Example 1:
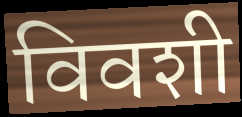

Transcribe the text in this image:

विवशी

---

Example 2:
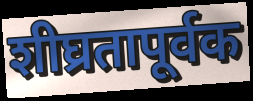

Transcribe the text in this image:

शीघ्रतापूर्वक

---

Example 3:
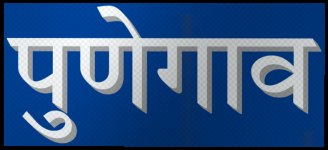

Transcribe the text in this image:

पुणेगाव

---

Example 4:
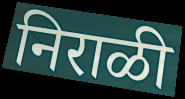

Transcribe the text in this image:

निराळी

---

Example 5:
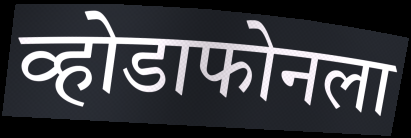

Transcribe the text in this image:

व्होडाफोनला